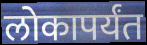
लोकापर्यंत